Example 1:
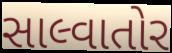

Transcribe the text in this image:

સાલ્વાતોર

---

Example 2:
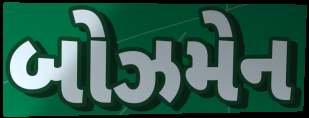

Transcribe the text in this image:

બોઝમેન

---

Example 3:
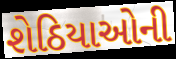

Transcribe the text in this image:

શેઠિયાઓની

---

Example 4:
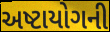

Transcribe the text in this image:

અષ્ટાયોગની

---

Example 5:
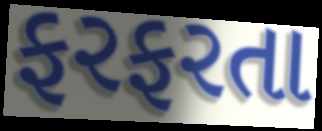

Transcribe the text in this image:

ફરફરતા